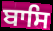
ਬਾਸਿ